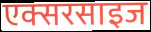
एक्सरसाइज